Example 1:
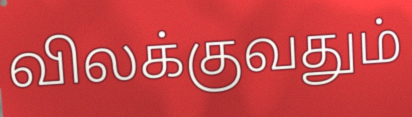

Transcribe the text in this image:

விலக்குவதும்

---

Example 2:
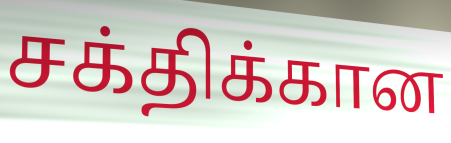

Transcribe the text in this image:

சக்திக்கான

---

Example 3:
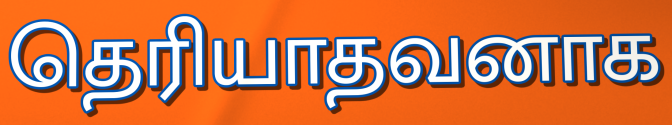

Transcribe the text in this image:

தெரியாதவனாக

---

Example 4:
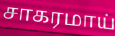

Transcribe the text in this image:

சாகரமாய்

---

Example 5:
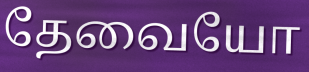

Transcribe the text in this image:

தேவையோ